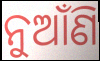
ନୁଆଁଣି